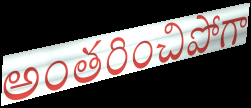
అంతరించిపోగా